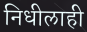
निधीलाही